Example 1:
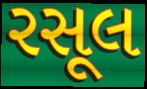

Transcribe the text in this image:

રસૂલ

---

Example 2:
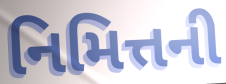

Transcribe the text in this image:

નિમિત્તની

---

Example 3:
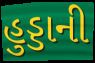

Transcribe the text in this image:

હુડ્ડાની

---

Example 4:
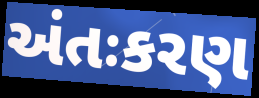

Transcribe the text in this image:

અંતઃકરણ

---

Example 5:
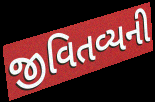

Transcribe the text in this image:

જીવિતવ્યની